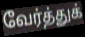
வேர்த்துக்